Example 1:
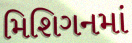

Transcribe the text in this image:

મિશિગનમાં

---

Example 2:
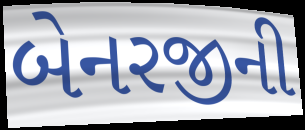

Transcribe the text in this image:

બેનરજીની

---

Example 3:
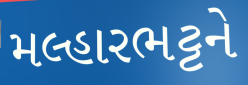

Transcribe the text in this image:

મલ્હારભટ્ટને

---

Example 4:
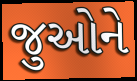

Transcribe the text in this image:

જુઓને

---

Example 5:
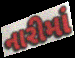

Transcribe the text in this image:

નારીમાં